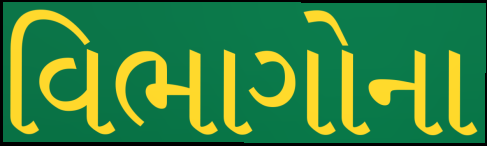
વિભાગોના